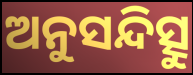
ଅନୁସନ୍ଦିତ୍ସୁ